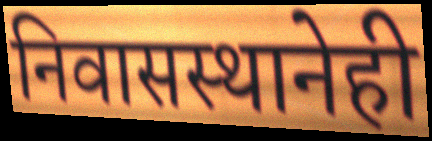
निवासस्थानेही